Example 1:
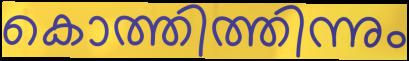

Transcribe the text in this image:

കൊത്തിത്തിന്നും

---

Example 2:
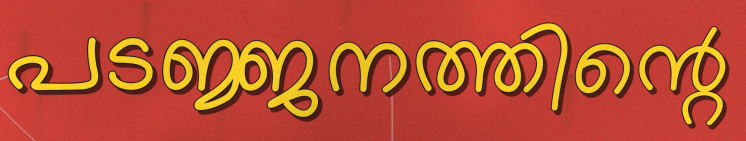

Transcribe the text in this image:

പടജ്ജനത്തിന്റെ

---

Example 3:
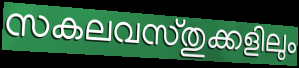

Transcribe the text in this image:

സകലവസ്തുക്കളിലും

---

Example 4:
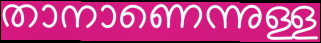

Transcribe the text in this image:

താനാണെന്നുള്ള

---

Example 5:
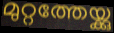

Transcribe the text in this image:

മുറ്റത്തേയ്ക്കു